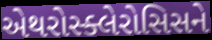
એથરોસ્ક્લેરોસિસને